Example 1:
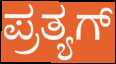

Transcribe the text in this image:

ಪ್ರತ್ಯಗ್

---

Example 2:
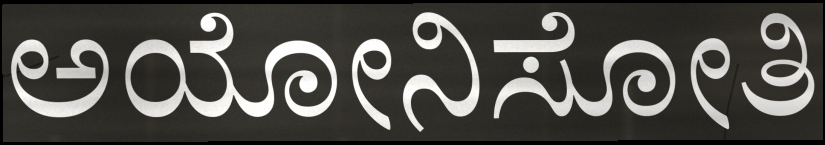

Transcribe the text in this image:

ಅಯೋನಿಸೋತಿ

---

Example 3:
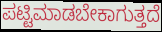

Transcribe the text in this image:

ಪಟ್ಟಿಮಾಡಬೇಕಾಗುತ್ತದೆ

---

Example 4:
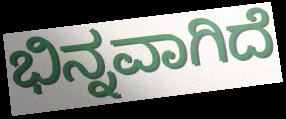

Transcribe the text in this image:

ಭಿನ್ನವಾಗಿದೆ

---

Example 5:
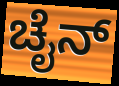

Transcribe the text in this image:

ಚೈನ್